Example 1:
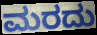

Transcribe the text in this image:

ಮರದು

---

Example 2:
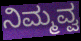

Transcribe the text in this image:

ನಿಮ್ಮವ್ವ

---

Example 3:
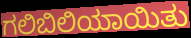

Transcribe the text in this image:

ಗಲಿಬಿಲಿಯಾಯಿತು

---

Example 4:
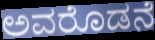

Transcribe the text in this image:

ಅವರೊಡನೆ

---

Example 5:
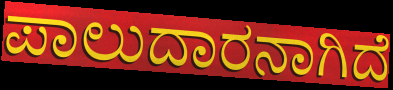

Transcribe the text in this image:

ಪಾಲುದಾರನಾಗಿದೆ